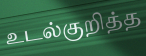
உடல்குறித்த